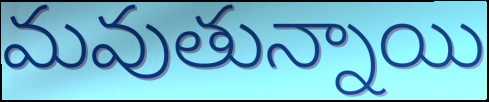
మవుతున్నాయి